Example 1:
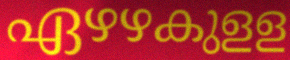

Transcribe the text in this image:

ഏഴഴകുളള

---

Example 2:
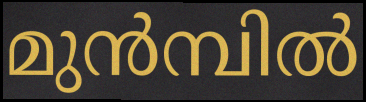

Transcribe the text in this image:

മുൻമ്പിൽ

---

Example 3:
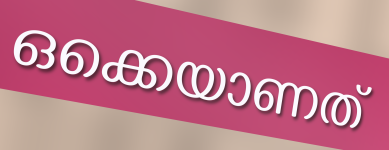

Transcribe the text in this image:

ഒക്കെയാണത്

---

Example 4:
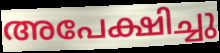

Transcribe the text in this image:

അപേക്ഷിച്ചു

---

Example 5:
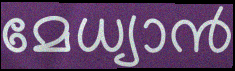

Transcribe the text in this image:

മേധ്യാൻ